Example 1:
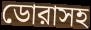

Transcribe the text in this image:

ডোরাসহ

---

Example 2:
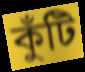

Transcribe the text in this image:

কুঁটি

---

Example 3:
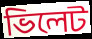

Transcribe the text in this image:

ভিলেট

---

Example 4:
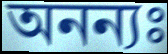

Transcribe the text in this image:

অনন্যঃ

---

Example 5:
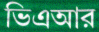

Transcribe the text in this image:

ভিএআর